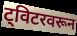
ट्विटरवरून